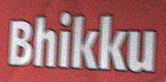
Bhikku